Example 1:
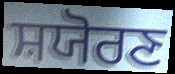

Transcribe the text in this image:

ਸ਼ਯੋਰਣ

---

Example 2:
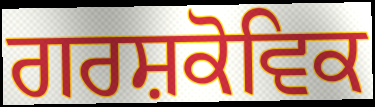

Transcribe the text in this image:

ਗਰਸ਼ਕੋਵਿਕ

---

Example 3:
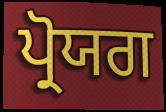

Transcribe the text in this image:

ਪ੍ਰੋਯਗ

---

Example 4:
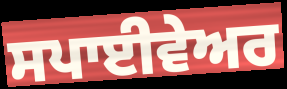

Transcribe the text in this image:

ਸਪਾਈਵੇਅਰ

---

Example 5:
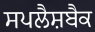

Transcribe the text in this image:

ਸਪਲੈਸ਼ਬੈਕ